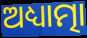
ଅଧ୍ୟାତ୍ମା